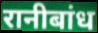
रानीबांध